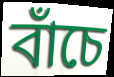
বাঁচে